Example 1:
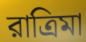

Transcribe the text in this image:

রাত্রিমা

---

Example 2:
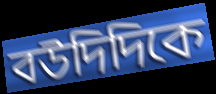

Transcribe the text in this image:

বউদিদিকে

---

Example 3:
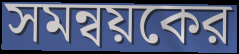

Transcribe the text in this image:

সমন্বয়কের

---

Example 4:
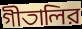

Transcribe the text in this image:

গীতালির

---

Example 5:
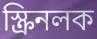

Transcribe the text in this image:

স্ক্রিনলক